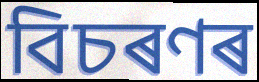
বিচৰণৰ